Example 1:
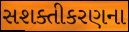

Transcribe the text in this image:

સશક્તીકરણના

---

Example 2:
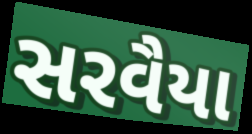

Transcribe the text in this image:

સરવૈયા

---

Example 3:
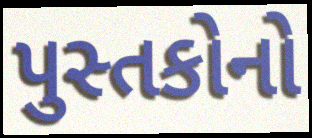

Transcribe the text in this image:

પુસ્તકોનો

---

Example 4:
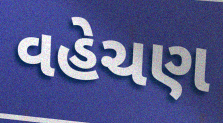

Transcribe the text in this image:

વહેચણ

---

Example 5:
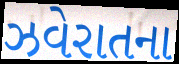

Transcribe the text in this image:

ઝવેરાતના